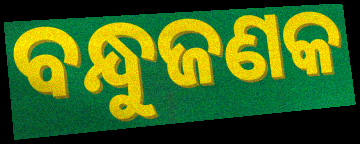
ବନ୍ଧୁଜଣକ